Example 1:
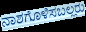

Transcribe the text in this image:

ನಾಶಗೊಳಿಸಬಲ್ಲರು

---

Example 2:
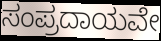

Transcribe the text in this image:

ಸಂಪ್ರದಾಯವೇ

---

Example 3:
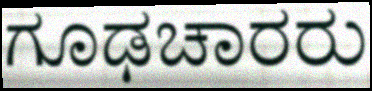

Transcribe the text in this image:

ಗೂಢಚಾರರು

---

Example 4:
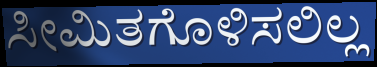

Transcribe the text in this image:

ಸೀಮಿತಗೊಳಿಸಲಿಲ್ಲ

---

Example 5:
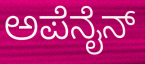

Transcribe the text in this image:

ಅಪೆನೈನ್